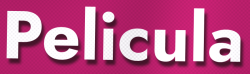
Pelicula